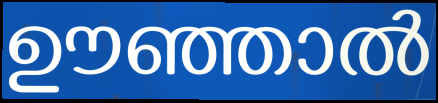
ഊഞ്ഞാൽ